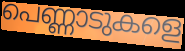
പെണ്ണാടുകളെ